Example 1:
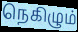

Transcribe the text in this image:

நெகிழும்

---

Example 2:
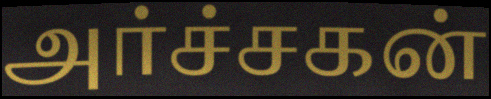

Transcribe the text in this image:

அர்ச்சகன்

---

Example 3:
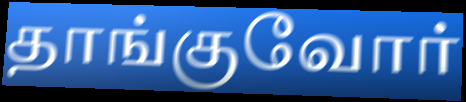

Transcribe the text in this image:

தாங்குவோர்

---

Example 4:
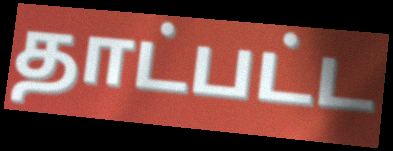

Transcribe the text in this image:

தாட்பட்ட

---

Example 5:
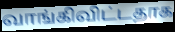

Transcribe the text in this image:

வாங்கிவிட்டதாக